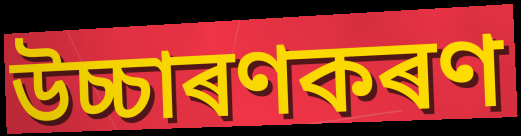
উচ্চাৰণকৰণ